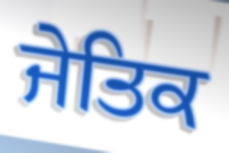
ਜੇਤਿਕ